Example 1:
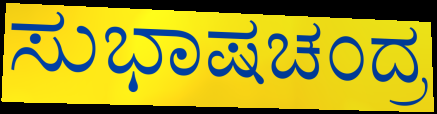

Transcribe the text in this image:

ಸುಭಾಷಚಂದ್ರ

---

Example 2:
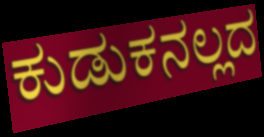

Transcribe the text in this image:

ಕುಡುಕನಲ್ಲದ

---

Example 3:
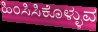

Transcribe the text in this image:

ಹಿಂಸಿಸಿಕೊಳ್ಳುವ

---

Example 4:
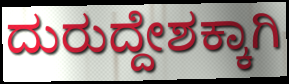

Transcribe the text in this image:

ದುರುದ್ದೇಶಕ್ಕಾಗಿ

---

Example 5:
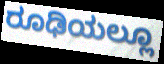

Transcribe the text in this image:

ರೂಢಿಯಲ್ಲೂ